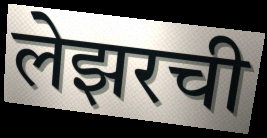
लेझरची